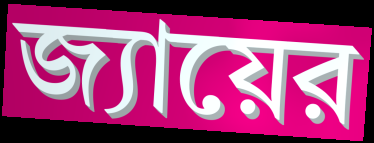
জ্যায়ের